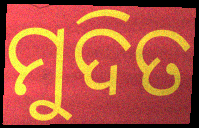
ମୁଦିତ